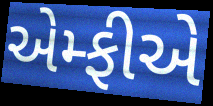
એમ્ફીએ